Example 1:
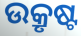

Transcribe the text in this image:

ଉକ୍ରୃଷ୍ଟ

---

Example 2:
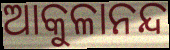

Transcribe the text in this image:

ଆକୁଳାନନ୍ଦ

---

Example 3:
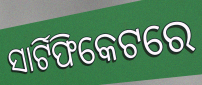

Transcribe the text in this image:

ସାର୍ଟିଫିକେଟରେ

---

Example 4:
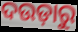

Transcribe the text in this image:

ଦଉଡ଼ାରୁ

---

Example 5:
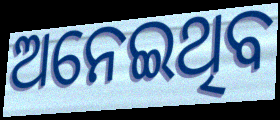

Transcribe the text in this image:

ଅନେଇଥିବ